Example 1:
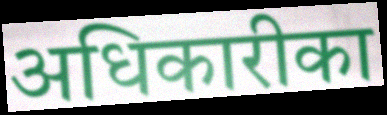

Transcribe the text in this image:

अधिकारीका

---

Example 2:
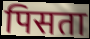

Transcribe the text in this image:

पिसता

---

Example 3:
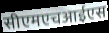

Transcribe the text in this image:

सीएमएचआईएस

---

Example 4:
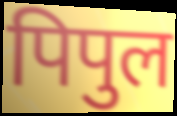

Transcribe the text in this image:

पिपुल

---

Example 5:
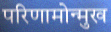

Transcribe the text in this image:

परिणामोन्मुख